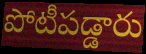
పోటీపడ్డారు